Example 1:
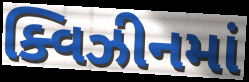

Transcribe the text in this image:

ક્વિઝીનમાં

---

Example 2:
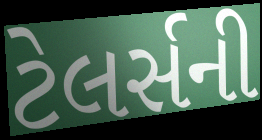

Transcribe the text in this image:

ટેલર્સની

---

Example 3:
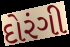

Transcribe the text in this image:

દોરંગી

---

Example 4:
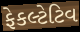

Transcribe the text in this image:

ફેકલ્ટેટિવ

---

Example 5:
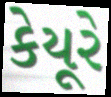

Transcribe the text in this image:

કેયૂરે